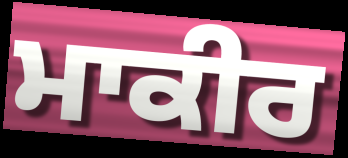
ਮਾਕੀਰ